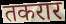
तकरार